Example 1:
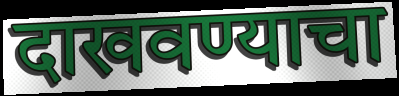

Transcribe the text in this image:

दाखवण्याचा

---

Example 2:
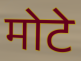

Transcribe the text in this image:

मोटे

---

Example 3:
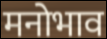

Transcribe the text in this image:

मनोभाव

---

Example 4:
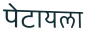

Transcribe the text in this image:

पेटायला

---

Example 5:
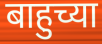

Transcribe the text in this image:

बाहुच्या